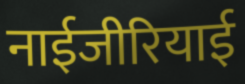
नाईजीरियाई